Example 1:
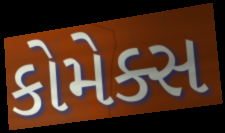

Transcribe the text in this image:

કોમેક્સ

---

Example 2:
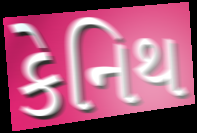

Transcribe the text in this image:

કેનિથ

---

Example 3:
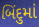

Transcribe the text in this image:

બિંદુમાં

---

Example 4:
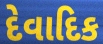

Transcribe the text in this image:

દેવાદિક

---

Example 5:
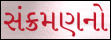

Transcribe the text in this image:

સંક્રમણનો